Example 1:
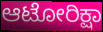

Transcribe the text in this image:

ಆಟೋರಿಕ್ಷಾ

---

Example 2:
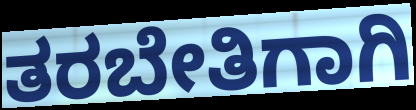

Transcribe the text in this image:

ತರಬೇತಿಗಾಗಿ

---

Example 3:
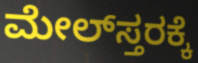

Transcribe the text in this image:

ಮೇಲ್‌ಸ್ತರಕ್ಕೆ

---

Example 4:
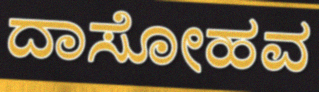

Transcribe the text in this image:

ದಾಸೋಹವ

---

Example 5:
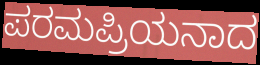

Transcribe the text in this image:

ಪರಮಪ್ರಿಯನಾದ